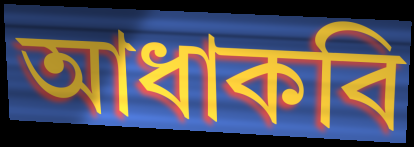
আধাকবি